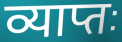
व्याप्तः